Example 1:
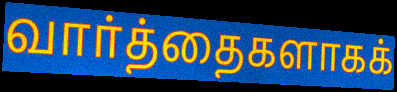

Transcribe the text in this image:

வார்த்தைகளாகக்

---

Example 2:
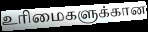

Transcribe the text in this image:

உரிமைகளுக்கான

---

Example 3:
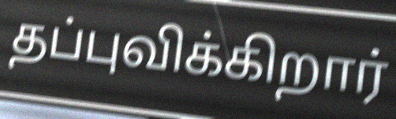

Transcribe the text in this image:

தப்புவிக்கிறார்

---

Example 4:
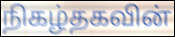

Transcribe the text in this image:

நிகழ்தகவின்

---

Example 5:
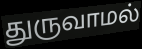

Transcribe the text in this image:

துருவாமல்